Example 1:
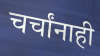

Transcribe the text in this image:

चर्चांनाही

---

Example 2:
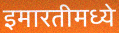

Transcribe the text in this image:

इमारतीमध्ये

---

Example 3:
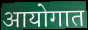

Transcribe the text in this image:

आयोगात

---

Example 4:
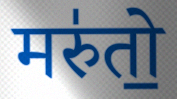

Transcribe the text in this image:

मरु॑तो॒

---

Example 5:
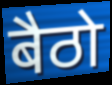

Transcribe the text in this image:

बैठो